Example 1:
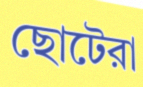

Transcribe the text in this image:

ছোটেরা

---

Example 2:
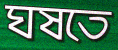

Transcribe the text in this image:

ঘষতে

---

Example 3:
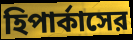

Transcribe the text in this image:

হিপার্কাসের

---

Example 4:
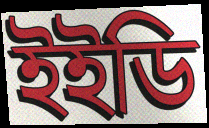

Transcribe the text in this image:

ইইডি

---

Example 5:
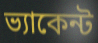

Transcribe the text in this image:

ভ্যাকেন্ট